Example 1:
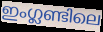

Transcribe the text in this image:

ഇംഗ്ലണ്ടിലെ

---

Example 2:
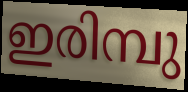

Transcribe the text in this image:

ഇരിമ്പു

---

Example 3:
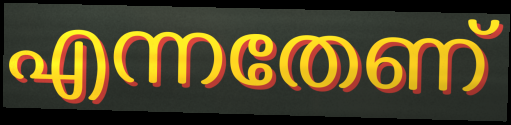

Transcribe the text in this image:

എന്നതേണ്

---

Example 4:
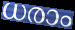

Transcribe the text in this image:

ധരാം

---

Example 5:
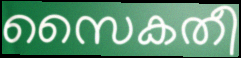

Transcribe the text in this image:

സൈകതീ